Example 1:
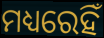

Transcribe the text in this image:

ମଧ୍ୟରେହିଁ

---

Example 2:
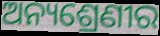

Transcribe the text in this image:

ଅନ୍ୟଶ୍ରେଣୀର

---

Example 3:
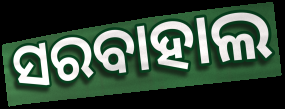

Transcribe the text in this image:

ସରବାହାଲ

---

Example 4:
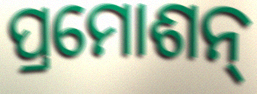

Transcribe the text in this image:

ପ୍ରମୋଶନ୍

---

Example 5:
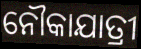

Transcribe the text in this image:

ନୌକାଯାତ୍ରୀ